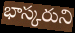
భాస్కరుని